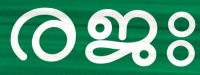
രജഃ